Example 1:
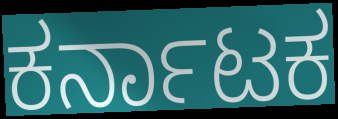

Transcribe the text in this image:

ಕರ್ನಾಟಕ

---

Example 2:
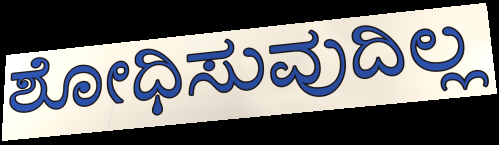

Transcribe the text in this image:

ಶೋಧಿಸುವುದಿಲ್ಲ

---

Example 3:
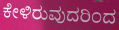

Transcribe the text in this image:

ಕೇಳಿರುವುದರಿಂದ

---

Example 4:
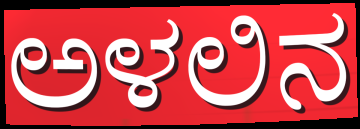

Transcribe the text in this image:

ಅಳಲಿನ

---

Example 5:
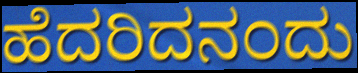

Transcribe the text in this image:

ಹೆದರಿದನಂದು